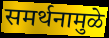
समर्थनामुळे